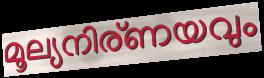
മൂല്യനിര്ണയവും